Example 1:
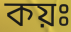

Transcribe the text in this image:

কয়ঃ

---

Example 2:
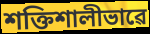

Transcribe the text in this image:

শক্তিশালীভাৱে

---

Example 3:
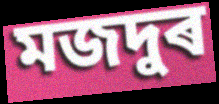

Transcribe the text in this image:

মজদুৰ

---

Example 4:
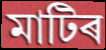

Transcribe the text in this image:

মাটিৰ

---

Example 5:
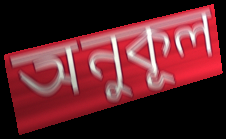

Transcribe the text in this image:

অনুকূল